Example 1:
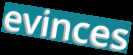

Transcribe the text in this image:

evinces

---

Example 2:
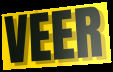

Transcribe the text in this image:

VEER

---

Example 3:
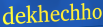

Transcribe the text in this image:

dekhechho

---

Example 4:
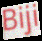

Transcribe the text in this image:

Biji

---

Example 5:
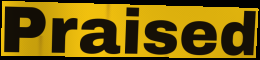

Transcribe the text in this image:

Praised